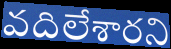
వదిలేశారని